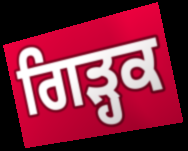
ਗਿੜ੍ਹਕ